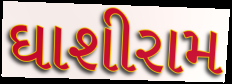
ઘાશીરામ